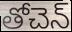
తోచెన్